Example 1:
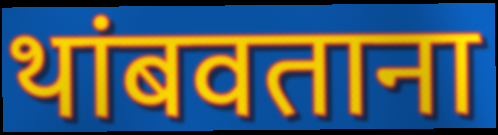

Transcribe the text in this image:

थांबवताना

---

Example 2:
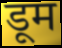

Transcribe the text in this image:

डूम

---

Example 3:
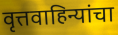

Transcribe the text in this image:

वृत्तवाहिन्यांचा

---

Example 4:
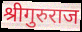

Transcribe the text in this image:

श्रीगुरुराज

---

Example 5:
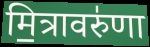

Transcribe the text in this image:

मि॒त्रावरु॑णा